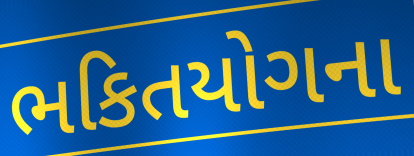
ભકિતયોગના